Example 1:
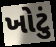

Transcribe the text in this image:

ખોટું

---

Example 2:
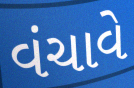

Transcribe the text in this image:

વંચાવે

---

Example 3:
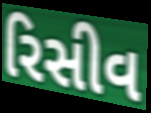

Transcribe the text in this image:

રિસીવ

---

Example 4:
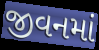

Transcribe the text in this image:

જીવનમાં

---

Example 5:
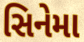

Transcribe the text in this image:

સિનેમા